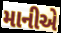
માનીએ